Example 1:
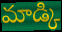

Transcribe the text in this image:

మాడ్కి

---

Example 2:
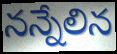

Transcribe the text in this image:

నన్నేలిన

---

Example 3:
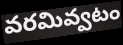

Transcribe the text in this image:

వరమివ్వటం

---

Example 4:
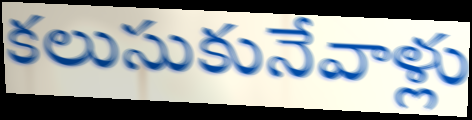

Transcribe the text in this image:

కలుసుకునేవాళ్లు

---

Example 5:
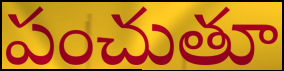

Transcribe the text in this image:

పంచుతూ